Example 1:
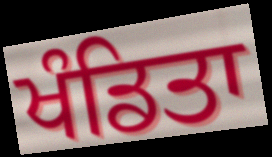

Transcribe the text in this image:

ਖੰਡਿਤਾ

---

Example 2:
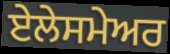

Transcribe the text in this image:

ਏਲੇਸਮੇਅਰ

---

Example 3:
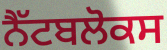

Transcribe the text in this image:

ਨੈੱਟਬਲੋਕਸ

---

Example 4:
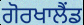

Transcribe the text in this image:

ਗੋਰਖਾਲੈਂਡ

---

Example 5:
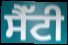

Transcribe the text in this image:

ਸੈੱਟੀ